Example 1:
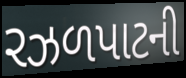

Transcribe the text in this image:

રઝળપાટની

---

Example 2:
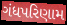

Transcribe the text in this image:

ગંધપરિણામ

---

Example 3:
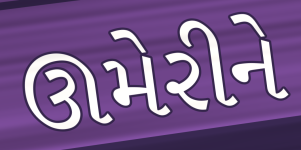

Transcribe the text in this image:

ઊમેરીને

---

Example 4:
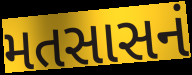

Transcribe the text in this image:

મતસાસનં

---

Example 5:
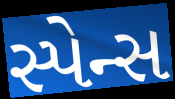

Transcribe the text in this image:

સ્પેન્સ